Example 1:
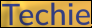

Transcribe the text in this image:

Techie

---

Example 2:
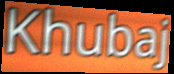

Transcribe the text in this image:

Khubaj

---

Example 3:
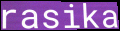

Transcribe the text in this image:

rasika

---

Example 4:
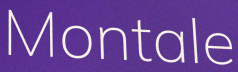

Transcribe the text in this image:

Montale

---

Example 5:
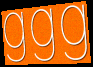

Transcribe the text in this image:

ggg